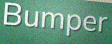
Bumper